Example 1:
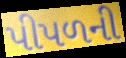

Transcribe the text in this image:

પીપળની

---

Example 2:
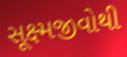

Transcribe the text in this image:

સૂક્ષ્મજીવોથી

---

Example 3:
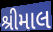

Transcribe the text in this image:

શ્રીમાલ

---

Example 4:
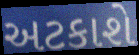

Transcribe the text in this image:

અટકાશે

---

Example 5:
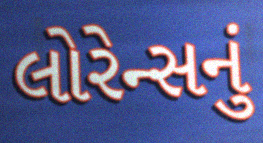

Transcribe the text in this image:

લોરેન્સનું